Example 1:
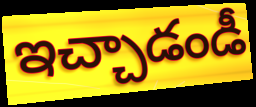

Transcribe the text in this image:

ఇచ్చాడండీ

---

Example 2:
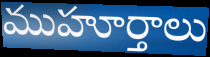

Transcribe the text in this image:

ముహూర్తాలు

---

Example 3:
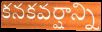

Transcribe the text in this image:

కనకవర్షాన్ని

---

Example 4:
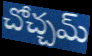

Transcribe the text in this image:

చోచ్చమ్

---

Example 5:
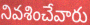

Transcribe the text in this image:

నివశించేవారు